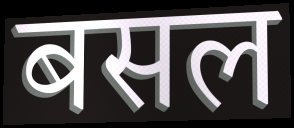
बसल